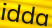
idda